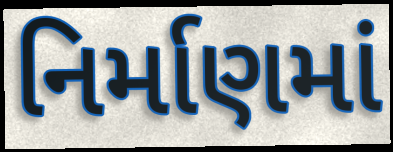
નિર્માણમાં